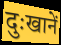
दुःखानें